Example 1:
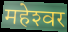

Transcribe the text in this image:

महेश्वर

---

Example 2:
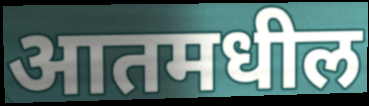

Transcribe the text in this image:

आतमधील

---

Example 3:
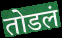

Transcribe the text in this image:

तोडलं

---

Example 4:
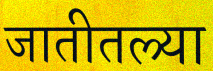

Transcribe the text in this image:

जातीतल्या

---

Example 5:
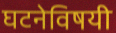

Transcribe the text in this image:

घटनेविषयी